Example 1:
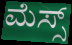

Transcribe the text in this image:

ಮೆಸ್ಸ್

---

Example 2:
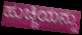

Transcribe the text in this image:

ಹುಚ್ಚಿಯನ್ನು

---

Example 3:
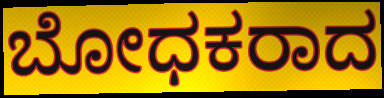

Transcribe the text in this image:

ಬೋಧಕರಾದ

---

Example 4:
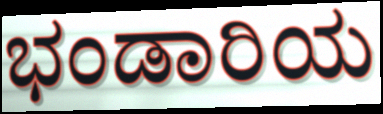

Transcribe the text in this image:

ಭಂಡಾರಿಯ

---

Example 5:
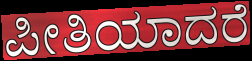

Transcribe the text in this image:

ಪೀತಿಯಾದರೆ